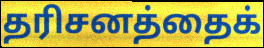
தரிசனத்தைக்